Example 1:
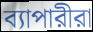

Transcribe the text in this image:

ব্যাপারীরা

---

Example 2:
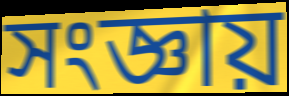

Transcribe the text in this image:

সংজ্ঞায়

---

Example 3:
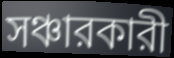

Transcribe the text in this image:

সঞ্চারকারী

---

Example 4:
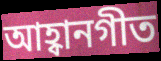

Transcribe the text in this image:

আহ্বানগীত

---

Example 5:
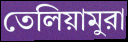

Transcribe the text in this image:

তেলিয়ামুরা